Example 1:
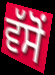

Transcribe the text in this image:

ਵੱਸੋਂ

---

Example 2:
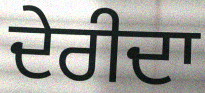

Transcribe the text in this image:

ਦੇਰੀਦਾ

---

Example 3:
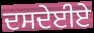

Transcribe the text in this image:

ਦਸਦੇਈਏ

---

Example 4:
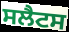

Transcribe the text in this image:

ਸਲੈਟਸ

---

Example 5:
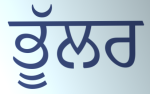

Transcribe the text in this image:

ਭੂੱਲਰ